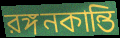
রঙ্গনকান্তি